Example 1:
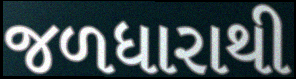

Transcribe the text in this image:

જળધારાથી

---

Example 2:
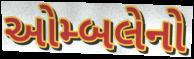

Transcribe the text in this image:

ઓમ્બલેનો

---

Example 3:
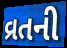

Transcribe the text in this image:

વ્રતની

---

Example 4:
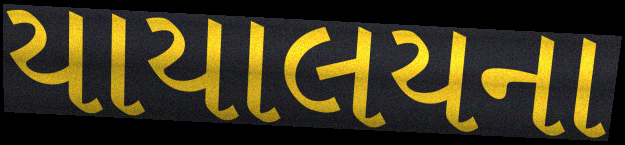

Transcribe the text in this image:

યાયાલયના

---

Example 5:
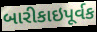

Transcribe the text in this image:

બારીકાઇપૂર્વક